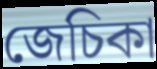
জেচিকা